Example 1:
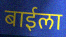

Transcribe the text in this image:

बाईला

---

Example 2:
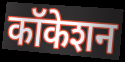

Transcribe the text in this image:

कॉकेशन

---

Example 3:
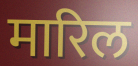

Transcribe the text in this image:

मारिल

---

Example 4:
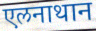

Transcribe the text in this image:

एलनाथान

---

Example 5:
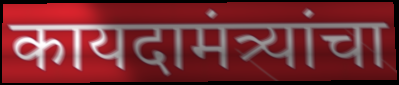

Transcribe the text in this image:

कायदामंत्र्यांचा